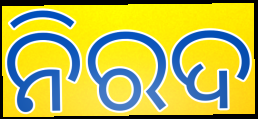
ନିରଦ